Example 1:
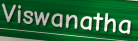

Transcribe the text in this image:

Viswanatha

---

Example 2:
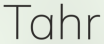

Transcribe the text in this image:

Tahr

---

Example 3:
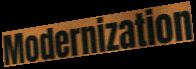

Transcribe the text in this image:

Modernization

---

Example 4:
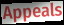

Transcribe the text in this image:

Appeals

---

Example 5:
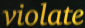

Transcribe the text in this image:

violate